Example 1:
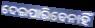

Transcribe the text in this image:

ଦେଇପାରିବେନାହିଁ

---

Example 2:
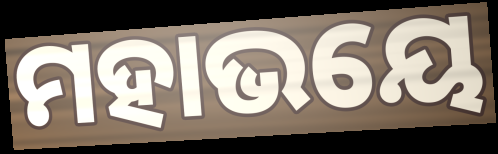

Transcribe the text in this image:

ମହାଭୟେ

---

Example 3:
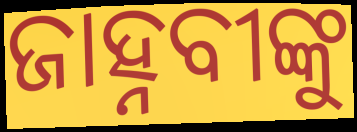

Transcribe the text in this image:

ଜାହ୍ନବୀଙ୍କୁ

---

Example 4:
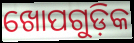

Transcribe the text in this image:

ଖୋପଗୁଡ଼ିକ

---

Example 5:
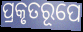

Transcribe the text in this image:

ପ୍ରକୃତରୂପେ